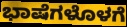
ಭಾಷೆಗಳೊಳಗೆ